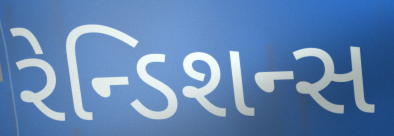
રેન્ડિશન્સ